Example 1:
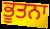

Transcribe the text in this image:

ਭੂਤਨਾ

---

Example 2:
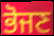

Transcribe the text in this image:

ਭੋਜਣ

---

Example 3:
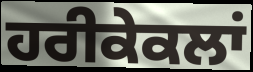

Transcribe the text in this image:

ਹਰੀਕੇਕਲਾਂ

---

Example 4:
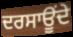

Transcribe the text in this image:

ਦਰਸਾਊਂਦੇ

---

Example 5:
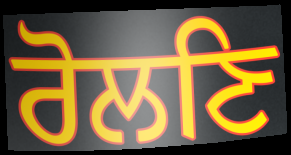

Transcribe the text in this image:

ਰੋਲਣਿ